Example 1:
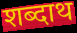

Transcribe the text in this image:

शब्दाथ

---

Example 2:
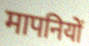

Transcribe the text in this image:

मापनियों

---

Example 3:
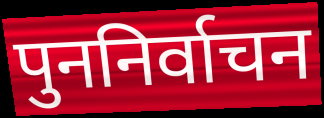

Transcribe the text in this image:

पुननिर्वाचन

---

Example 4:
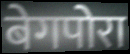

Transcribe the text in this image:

बेगपोरा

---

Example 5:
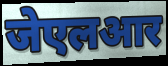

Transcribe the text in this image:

जेएलआर